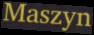
Maszyn